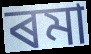
ৰমা